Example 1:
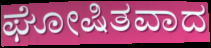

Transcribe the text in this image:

ಘೋಷಿತವಾದ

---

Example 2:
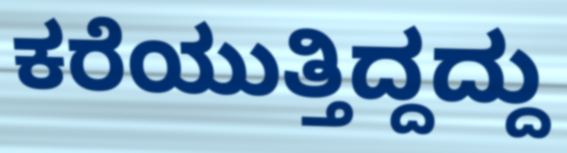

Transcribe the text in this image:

ಕರೆಯುತ್ತಿದ್ದದ್ದು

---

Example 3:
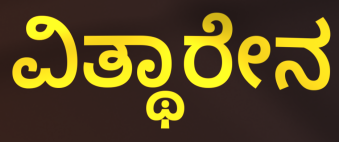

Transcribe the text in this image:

ವಿತ್ಥಾರೇನ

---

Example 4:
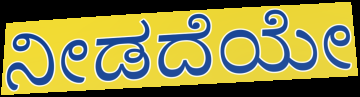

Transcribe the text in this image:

ನೀಡದೆಯೇ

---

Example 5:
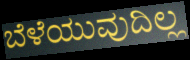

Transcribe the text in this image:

ಬೆಳೆಯುವುದಿಲ್ಲ